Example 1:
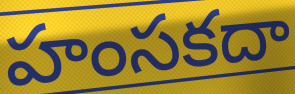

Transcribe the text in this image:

హంసకదా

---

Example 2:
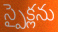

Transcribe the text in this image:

స్పైక్లను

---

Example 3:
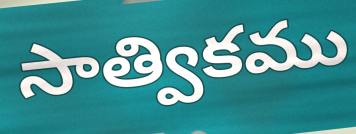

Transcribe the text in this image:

సాత్వికము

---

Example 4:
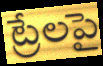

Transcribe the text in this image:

ట్రేలపై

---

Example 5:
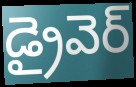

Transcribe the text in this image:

డ్రైవెర్